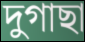
দুগাছা